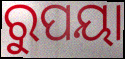
ରୁପୟା